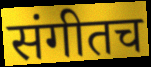
संगीतच